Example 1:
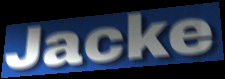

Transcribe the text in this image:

Jacke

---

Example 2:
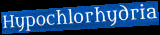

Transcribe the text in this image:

Hypochlorhydria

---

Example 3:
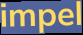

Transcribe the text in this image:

impel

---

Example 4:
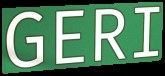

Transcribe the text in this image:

GERI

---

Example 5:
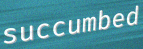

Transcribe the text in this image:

succumbed